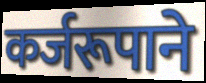
कर्जरूपाने